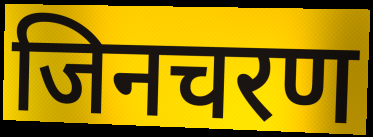
जिनचरण